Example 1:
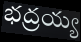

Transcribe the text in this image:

భద్రయ్య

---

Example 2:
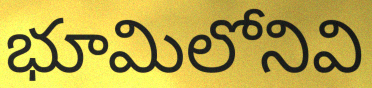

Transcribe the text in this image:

భూమిలోనివి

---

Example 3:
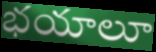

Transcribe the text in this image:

భయాలూ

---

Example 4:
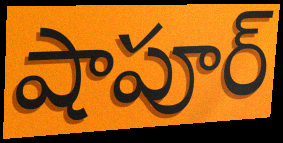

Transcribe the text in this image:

షాపూర్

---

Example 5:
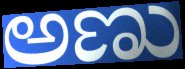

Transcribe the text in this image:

అణు